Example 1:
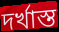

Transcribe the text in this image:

দৰ্খাস্ত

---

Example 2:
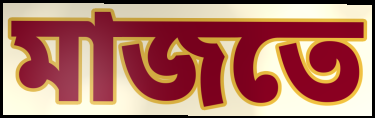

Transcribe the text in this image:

মাজতে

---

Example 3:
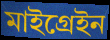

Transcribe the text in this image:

মাইগ্ৰেইন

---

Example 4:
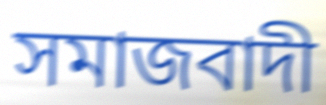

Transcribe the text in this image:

সমাজবাদী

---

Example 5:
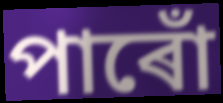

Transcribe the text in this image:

পাৰোঁ